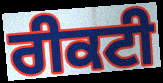
ਰੀਕਟੀ